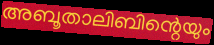
അബൂതാലിബിന്റെയും